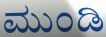
ಮುಂಡಿ